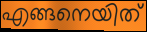
എങ്ങനെയിത്